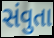
સંવુતા